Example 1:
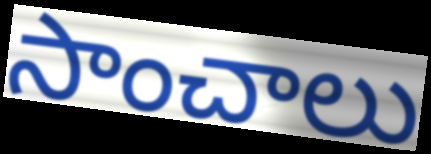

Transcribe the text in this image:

సాంచాలు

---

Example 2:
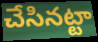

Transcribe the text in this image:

చేసినట్టా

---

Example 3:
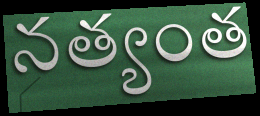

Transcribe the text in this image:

నత్యంత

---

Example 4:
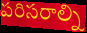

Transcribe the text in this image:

పరిసరాల్ని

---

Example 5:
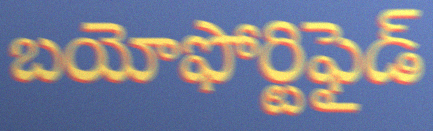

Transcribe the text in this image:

బయోఫోర్టిఫైడ్